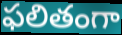
ఫలితంగా